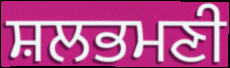
ਸ਼ਲਭਮਣੀ